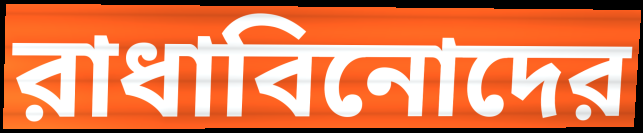
রাধাবিনোদের